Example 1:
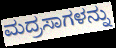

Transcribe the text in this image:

ಮದ್ರಸಾಗಳನ್ನು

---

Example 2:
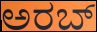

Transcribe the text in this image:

ಅರಬ್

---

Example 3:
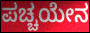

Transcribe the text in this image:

ಪಚ್ಚಯೇನ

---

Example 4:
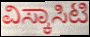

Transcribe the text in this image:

ವಿಸ್ಕಾಸಿಟಿ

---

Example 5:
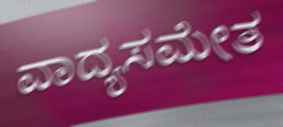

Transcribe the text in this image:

ವಾದ್ಯಸಮೇತ